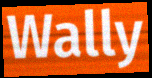
Wally